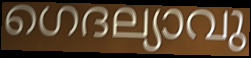
ഗെദല്യാവു